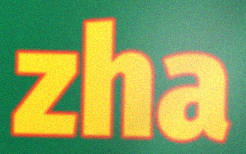
zha